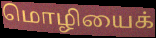
மொழியைக்